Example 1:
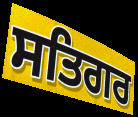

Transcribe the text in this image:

ਸਤਿਗਰ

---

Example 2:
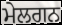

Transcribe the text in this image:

ਮੇਲਗਨ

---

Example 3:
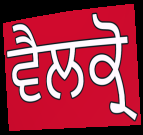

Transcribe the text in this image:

ਵੈਲਕ੍ਰੋ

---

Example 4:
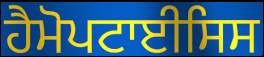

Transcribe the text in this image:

ਹੈਮੋਪਟਾਈਸਿਸ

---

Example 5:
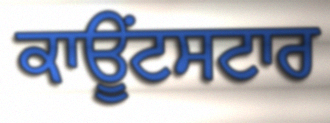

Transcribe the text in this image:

ਕਾਊਂਟਸਟਾਰ